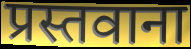
प्रस्तवाना